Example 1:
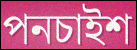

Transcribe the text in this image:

পনচাইশ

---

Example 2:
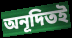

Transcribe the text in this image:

অনূদিতই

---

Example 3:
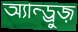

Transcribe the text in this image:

অ্যান্ড্রুজ়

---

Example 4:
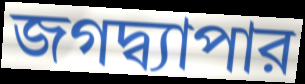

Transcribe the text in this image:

জগদ্ব্যাপার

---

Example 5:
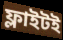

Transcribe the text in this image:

ফ্লাইটই